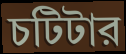
চটিটার